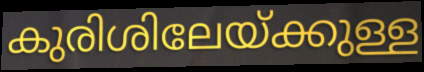
കുരിശിലേയ്ക്കുള്ള